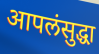
आपलंसुद्धा